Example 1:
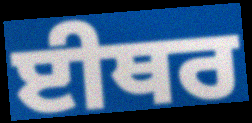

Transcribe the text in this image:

ਈਥਰ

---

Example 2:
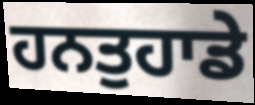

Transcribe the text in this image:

ਹਨਤੁਹਾਡੇ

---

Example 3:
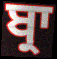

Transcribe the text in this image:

ਬ੍ਰਾ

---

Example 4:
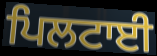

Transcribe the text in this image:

ਪਿਲਟਾਈ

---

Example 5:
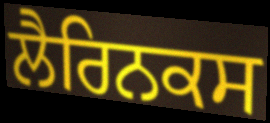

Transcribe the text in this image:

ਲੈਰਿਨਕਸ